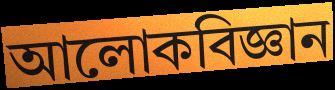
আলোকবিজ্ঞান